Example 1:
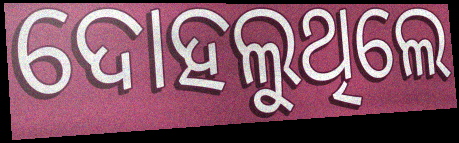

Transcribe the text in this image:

ଦୋହଲୁଥିଲେ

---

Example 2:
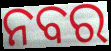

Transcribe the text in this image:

ନବର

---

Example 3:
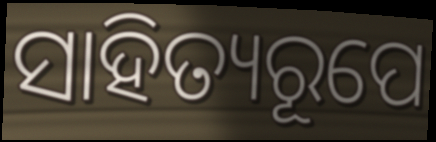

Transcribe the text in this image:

ସାହିତ୍ୟରୂପେ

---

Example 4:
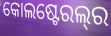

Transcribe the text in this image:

କୋଲଷ୍ଟେରଲ୍‌ର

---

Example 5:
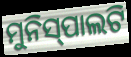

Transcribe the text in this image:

ମୁନିସ୍‍ପାଲଟି